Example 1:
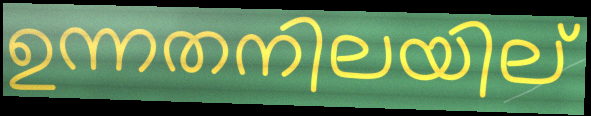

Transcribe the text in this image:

ഉന്നതനിലയില്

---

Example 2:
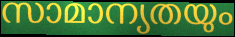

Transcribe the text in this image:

സാമാന്യതയും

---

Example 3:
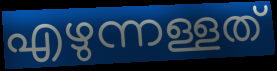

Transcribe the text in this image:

എഴുന്നള്ളത്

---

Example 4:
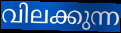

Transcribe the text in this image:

വിലക്കുന്ന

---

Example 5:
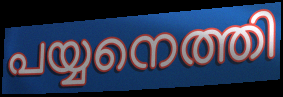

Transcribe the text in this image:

പയ്യനെത്തി